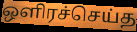
ஒளிரச்செய்த